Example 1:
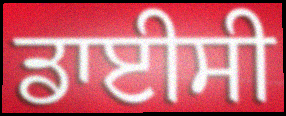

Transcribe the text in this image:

ਡਾਈਸੀ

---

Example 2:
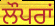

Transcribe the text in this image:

ਲੌਪਰਾਂ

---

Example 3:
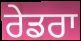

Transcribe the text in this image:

ਰੇਡਰਾ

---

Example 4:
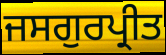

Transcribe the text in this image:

ਜਸਗੁਰਪ੍ਰੀਤ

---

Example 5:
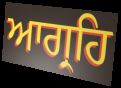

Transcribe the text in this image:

ਆਗ੍ਰਹਿ